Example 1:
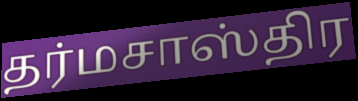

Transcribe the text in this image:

தர்மசாஸ்திர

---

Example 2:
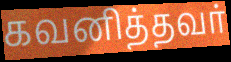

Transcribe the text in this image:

கவனித்தவர்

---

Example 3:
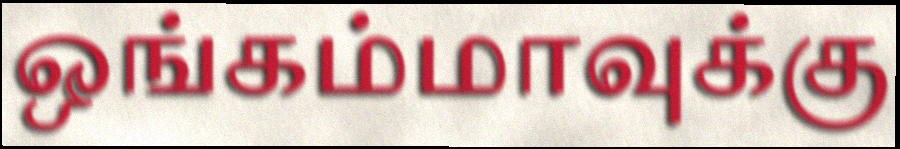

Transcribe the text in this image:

ஒங்கம்மாவுக்கு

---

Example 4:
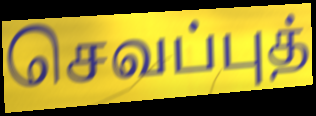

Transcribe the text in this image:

செவப்புத்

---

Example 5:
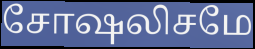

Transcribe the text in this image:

சோஷலிசமே